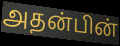
அதன்பின்